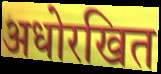
अधोरखित